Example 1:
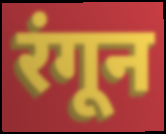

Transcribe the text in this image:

रंगून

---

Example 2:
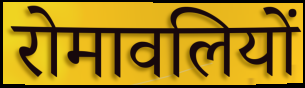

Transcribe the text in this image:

रोमावलियों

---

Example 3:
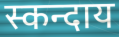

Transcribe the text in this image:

स्कन्दाय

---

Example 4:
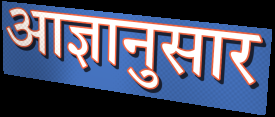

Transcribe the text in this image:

आज्ञानुसार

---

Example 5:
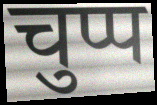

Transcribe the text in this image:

चुप्प